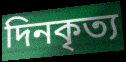
দিনকৃত্য